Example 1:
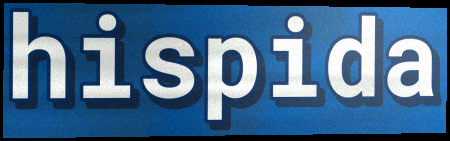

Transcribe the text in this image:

hispida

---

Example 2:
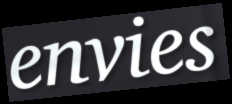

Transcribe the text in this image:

envies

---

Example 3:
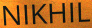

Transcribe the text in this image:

NIKHIL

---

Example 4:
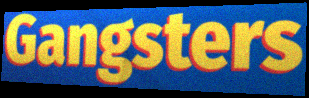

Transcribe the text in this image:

Gangsters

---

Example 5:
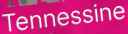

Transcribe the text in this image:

Tennessine